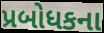
પ્રબોધકના